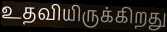
உதவியிருக்கிறது